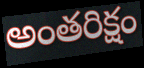
అంతరిక్షం